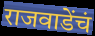
राजवाडेंचं